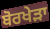
ਬੋਰਖੇੜਾ